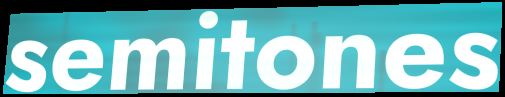
semitones